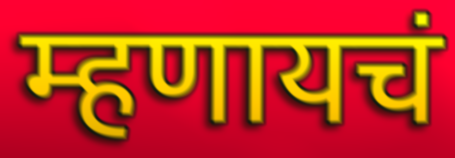
म्हणायचं